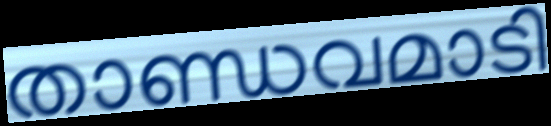
താണ്ഡവമാടി